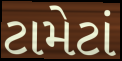
ટામેટાં